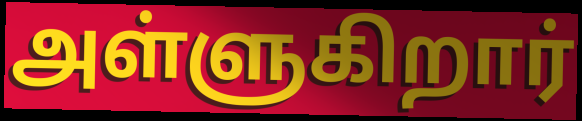
அள்ளுகிறார்